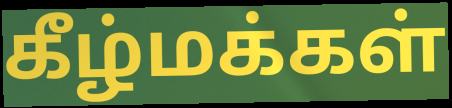
கீழ்மக்கள்